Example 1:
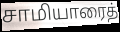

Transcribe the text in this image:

சாமியாரைத்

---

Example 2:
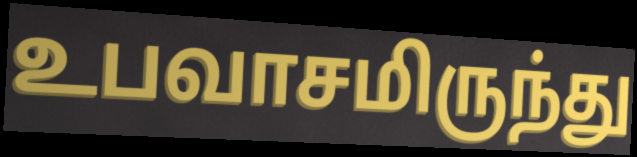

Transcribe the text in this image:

உபவாசமிருந்து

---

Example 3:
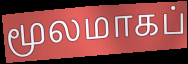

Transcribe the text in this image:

மூலமாகப்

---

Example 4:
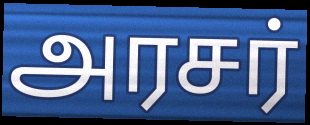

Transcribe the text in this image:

அரசர்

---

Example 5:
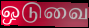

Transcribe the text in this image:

ஒடுவை